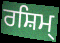
ਰਸ਼ਿਮ੍